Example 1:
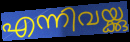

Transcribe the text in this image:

എന്നിവയ്ക്കു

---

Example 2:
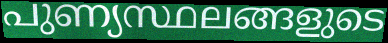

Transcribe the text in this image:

പുണ്യസ്ഥലങ്ങളുടെ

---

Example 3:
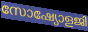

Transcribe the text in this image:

സോഷ്യോളജി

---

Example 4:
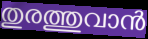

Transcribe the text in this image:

തുരത്തുവാൻ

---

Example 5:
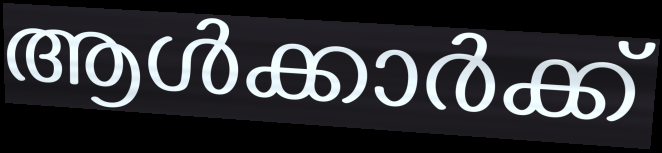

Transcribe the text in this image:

ആൾക്കാർക്ക്